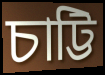
চাট্টি